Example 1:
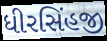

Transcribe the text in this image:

ધીરસિંહજી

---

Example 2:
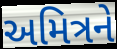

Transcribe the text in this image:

અમિત્રને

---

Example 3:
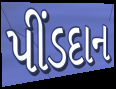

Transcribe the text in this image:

પીંડદાન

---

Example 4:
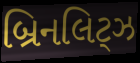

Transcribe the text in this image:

બ્રિનલિટ્ઝ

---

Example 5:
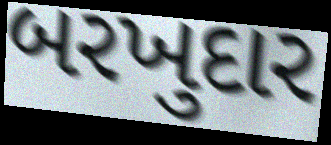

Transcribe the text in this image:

બરખુદાર